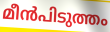
മീൻപിടുത്തം